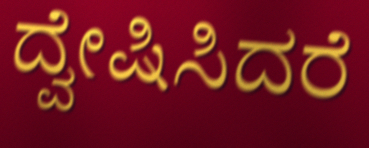
ದ್ವೇಷಿಸಿದರೆ